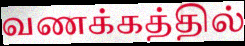
வணக்கத்தில்